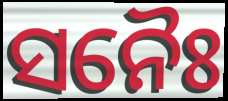
ସନୈଃ